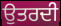
ਉਤਰਦੀ